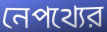
নেপথ্যের